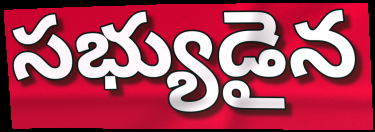
సభ్యుడైన